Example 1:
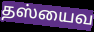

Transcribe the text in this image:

தஸ்யைவ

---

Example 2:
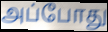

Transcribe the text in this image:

அப்போது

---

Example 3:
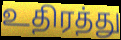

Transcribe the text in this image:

உதிரத்து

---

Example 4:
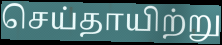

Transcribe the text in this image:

செய்தாயிற்று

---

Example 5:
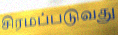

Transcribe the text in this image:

சிரமப்படுவது